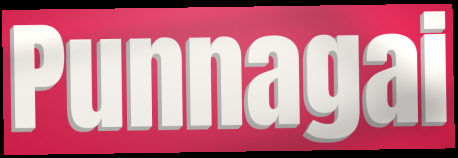
Punnagai